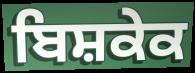
ਬਿਸ਼ਕੇਕ